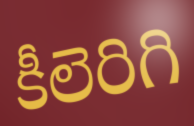
కీలెరిగి